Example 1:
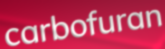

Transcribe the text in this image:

carbofuran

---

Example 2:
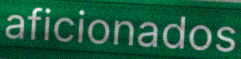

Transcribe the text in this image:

aficionados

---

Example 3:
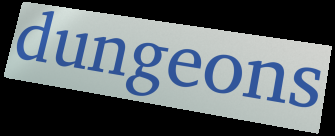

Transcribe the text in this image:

dungeons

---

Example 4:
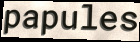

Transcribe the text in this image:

papules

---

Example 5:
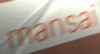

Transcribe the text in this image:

mansai